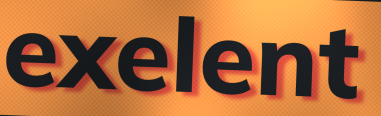
exelent